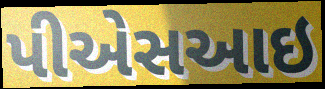
પીએસઆઇ